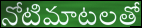
నోటిమాటలతో